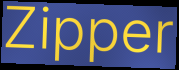
Zipper